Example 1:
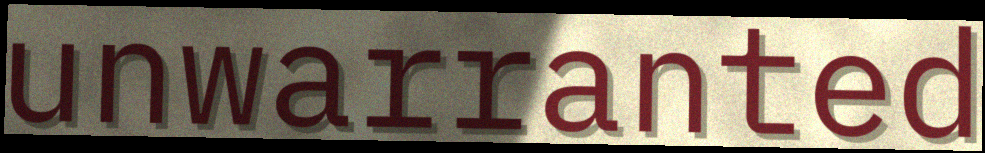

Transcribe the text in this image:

unwarranted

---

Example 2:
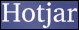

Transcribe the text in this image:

Hotjar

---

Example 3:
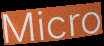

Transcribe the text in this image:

Micro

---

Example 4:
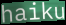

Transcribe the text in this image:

haiku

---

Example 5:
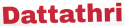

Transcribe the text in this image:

Dattathri